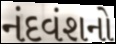
નંદવંશનો